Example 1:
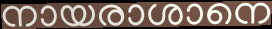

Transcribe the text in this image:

നായരാശാനെ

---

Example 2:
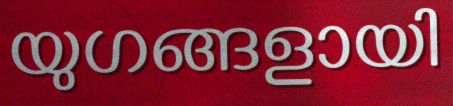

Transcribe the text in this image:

യുഗങ്ങളായി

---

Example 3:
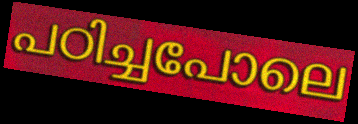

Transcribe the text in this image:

പഠിച്ചപോലെ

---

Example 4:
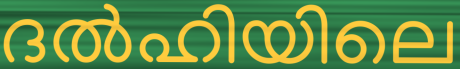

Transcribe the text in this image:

ദൽഹിയിലെ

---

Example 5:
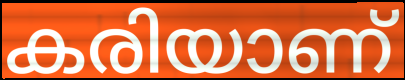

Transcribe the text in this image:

കരിയാണ്